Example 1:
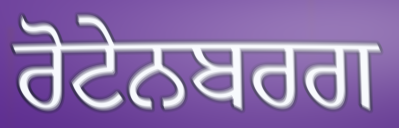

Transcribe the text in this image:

ਰੋਟੇਨਬਰਗ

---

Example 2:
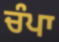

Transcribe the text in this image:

ਚੰਪਾ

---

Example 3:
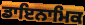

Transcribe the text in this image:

ਡਾਇਨਾਮਿਕ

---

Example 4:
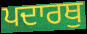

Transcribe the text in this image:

ਪਦਾਰਥੁ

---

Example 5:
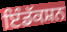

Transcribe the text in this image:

ਇੰਡੱਕਸ਼ਨ